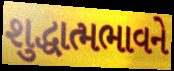
શુદ્ધાત્મભાવને